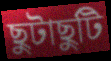
ছুটাছুটি